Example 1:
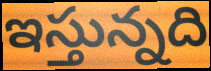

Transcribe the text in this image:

ఇస్తున్నది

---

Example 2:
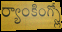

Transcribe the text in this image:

ర్యాంకింగ్స్లో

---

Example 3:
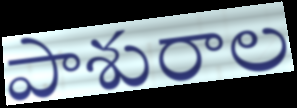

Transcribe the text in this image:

పాశురాల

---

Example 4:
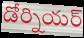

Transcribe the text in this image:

డోర్నియర్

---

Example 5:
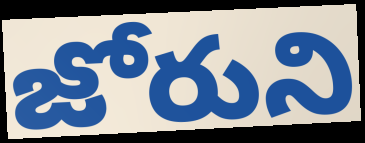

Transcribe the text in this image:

జోరుని